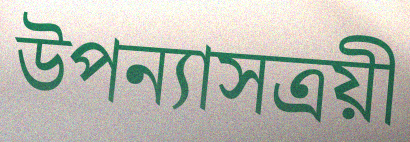
উপন্যাসত্রয়ী